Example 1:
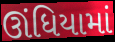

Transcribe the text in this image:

ઊંધિયામાં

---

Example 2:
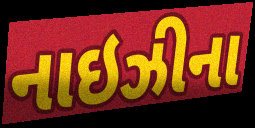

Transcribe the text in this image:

નાઇઝીના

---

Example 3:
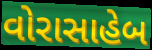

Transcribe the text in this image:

વોરાસાહેબ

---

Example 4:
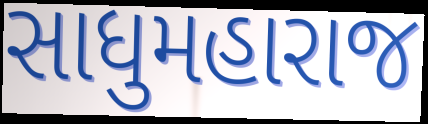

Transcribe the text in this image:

સાધુમહારાજ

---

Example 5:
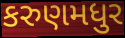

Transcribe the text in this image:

કરુણમધુર